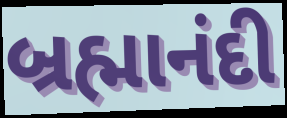
બ્રહ્માનંદી